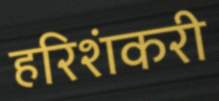
हरिशंकरी